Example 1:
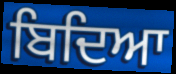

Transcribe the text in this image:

ਬਿਦਿਆ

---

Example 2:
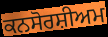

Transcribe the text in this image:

ਕਨਸੋਰਸ਼ੀਅਮ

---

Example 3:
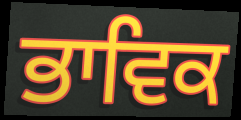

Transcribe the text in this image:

ਭਾਵਿਕ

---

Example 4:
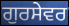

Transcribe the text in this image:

ਗੁਰਸੇਵਰ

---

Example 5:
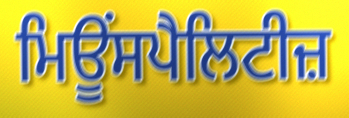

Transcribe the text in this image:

ਮਿਊਂਸਪੈਲਿਟੀਜ਼